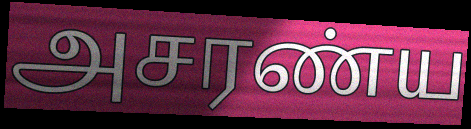
அசரண்ய